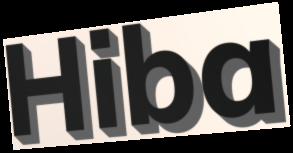
Hiba